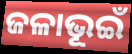
ଜଳାଭୂଇଁ